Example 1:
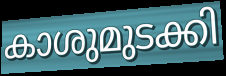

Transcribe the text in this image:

കാശുമുടക്കി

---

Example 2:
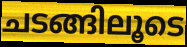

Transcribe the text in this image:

ചടങ്ങിലൂടെ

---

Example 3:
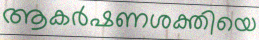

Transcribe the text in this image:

ആകർഷണശക്തിയെ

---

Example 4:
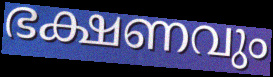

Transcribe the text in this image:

ഭക്ഷണവും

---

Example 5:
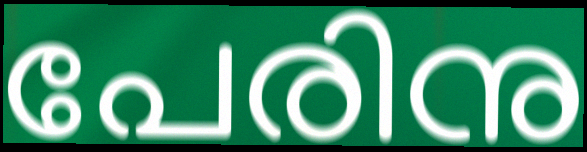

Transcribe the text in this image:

പേരിനു